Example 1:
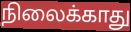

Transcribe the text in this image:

நிலைக்காது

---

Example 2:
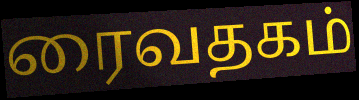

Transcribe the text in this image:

ரைவதகம்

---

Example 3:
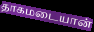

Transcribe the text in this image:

தாகமடையான்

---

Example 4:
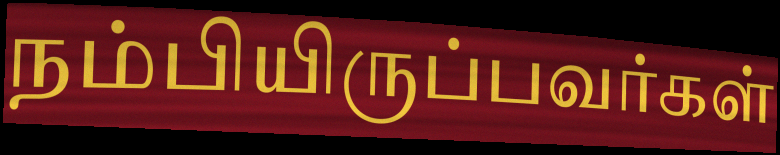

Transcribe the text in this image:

நம்பியிருப்பவர்கள்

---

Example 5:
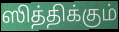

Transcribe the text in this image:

ஸித்திக்கும்